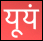
यूयं